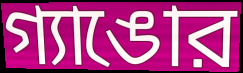
গ্যাঙোর